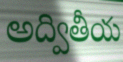
అద్వితీయ